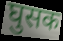
घुसक